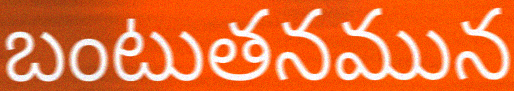
బంటుతనమున